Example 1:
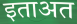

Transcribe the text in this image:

इताअत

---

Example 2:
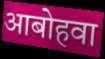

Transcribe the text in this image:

आबोहवा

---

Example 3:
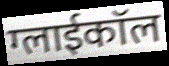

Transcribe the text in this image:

ग्लाईकॉल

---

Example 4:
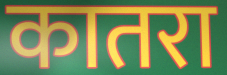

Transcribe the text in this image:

कातरा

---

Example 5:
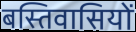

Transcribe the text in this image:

बस्तिवासियों